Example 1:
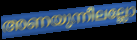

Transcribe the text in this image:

അണയുന്നീലല്ലോ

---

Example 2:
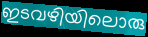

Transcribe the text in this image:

ഇടവഴിയിലൊരു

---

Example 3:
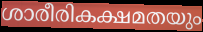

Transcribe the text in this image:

ശാരീരികക്ഷമതയും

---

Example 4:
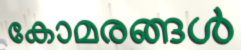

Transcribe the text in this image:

കോമരങ്ങൾ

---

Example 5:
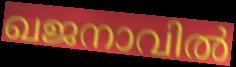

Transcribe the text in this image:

ഖജനാവിൽ